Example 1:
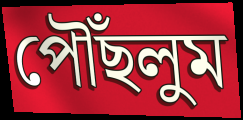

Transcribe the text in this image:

পৌঁছলুম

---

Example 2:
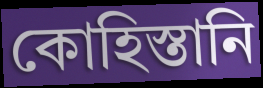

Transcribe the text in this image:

কোহিস্তানি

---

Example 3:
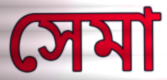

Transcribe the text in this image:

সেমা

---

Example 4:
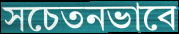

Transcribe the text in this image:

সচেতনভাবে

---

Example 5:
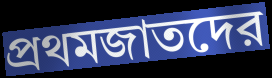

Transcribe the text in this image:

প্রথমজাতদের